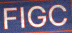
FIGC